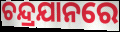
ଚନ୍ଦ୍ରଯାନରେ